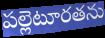
పల్లెటూరతను